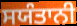
ਸਯੰਤਾਨੀ